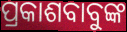
ପ୍ରକାଶବାବୁଙ୍କ